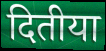
दितीया